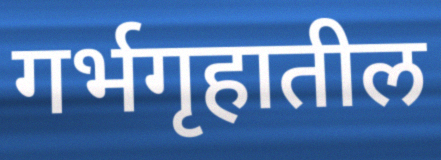
गर्भगृहातील